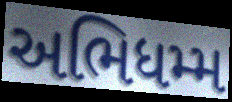
અભિધમ્મ